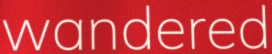
wandered